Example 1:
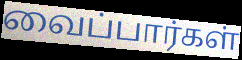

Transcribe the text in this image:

வைப்பார்கள்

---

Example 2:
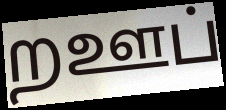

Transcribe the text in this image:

றஊப்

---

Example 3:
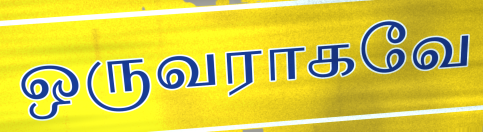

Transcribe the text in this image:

ஒருவராகவே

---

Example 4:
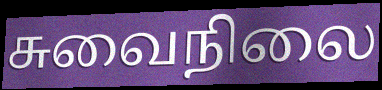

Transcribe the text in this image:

சுவைநிலை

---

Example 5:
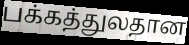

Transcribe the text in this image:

பக்கத்துலதான